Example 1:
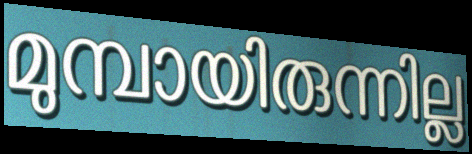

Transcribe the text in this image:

മുമ്പായിരുന്നില്ല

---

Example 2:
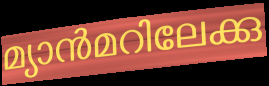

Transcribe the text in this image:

മ്യാൻമറിലേക്കു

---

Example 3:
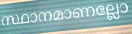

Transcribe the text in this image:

സ്ഥാനമാണല്ലോ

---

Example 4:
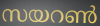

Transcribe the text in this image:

സയറൺ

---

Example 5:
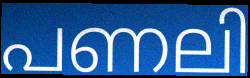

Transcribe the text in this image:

പണലി